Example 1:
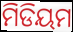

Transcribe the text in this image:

ମିଡିୟମ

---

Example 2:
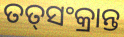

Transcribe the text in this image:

ତତ୍‌ସଂକ୍ରାନ୍ତ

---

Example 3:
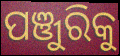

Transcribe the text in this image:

ପଞ୍ଜୁରିକୁ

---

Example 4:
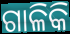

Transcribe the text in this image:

ଗାଳିକି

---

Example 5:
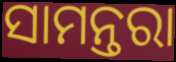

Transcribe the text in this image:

ସାମନ୍ତରା